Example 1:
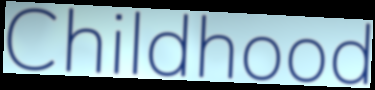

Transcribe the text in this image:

Childhood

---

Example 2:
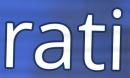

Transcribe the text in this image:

rati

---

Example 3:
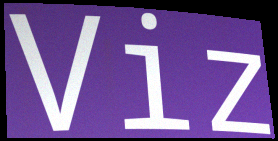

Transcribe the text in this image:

Viz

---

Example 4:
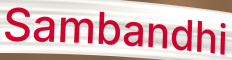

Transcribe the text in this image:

Sambandhi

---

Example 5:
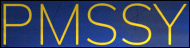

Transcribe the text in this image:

PMSSY